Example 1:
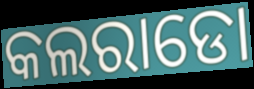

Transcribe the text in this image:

କଲରାଡୋ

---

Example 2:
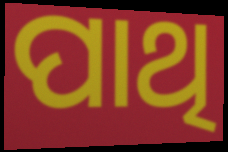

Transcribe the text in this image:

ପାଥି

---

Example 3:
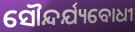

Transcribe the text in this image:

ସୌନ୍ଦର୍ଯ୍ୟବୋଧୀ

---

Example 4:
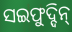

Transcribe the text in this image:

ସଇଫୁଦ୍ଦିନ୍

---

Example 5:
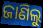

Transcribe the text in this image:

ଜାଣିଲୁ